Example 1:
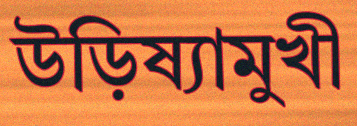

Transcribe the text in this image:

উড়িষ্যামুখী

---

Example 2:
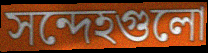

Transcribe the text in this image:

সন্দেহগুলো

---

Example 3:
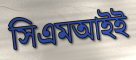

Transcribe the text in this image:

সিএমআইই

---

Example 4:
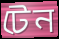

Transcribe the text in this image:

টেন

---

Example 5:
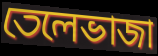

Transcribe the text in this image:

তেলেভাজা